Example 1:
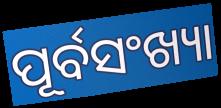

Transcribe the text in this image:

ପୂର୍ବସଂଖ୍ୟା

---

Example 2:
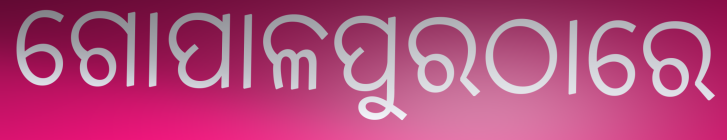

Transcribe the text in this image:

ଗୋପାଳପୁରଠାରେ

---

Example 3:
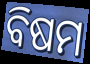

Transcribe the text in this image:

ବିଷମ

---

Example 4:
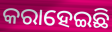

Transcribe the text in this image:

କରାହେଇଛି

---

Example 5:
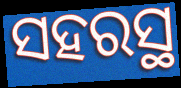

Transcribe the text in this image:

ସହରସ୍ଥ